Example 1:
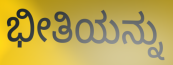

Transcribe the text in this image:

ಭೀತಿಯನ್ನು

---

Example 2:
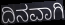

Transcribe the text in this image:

ದಿನವಾಗಿ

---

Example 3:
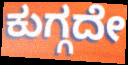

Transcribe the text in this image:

ಕುಗ್ಗದೇ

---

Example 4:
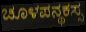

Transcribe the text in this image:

ಚೂಳಪನ್ಥಕಸ್ಸ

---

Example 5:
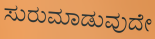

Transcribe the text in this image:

ಸುರುಮಾಡುವುದೇ